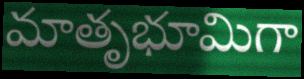
మాతృభూమిగా